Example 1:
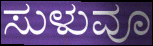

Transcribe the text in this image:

ಸುಳುವೂ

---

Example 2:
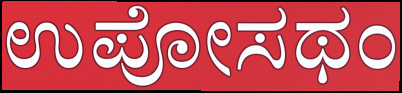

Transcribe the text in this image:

ಉಪೋಸಥಂ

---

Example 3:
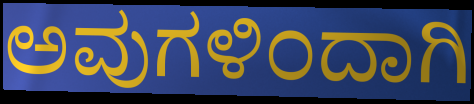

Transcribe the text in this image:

ಅವುಗಳಿಂದಾಗಿ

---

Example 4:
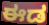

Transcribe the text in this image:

ಈಡ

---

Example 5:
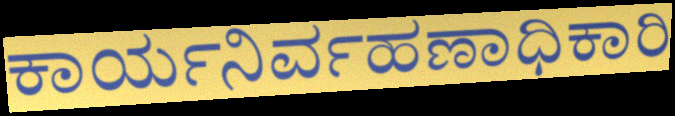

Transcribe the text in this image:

ಕಾರ್ಯನಿರ್ವಹಣಾಧಿಕಾರಿ